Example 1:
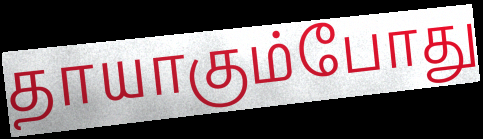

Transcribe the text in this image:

தாயாகும்போது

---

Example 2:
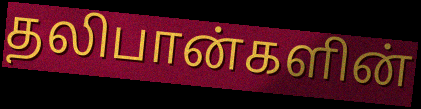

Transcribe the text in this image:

தலிபான்களின்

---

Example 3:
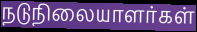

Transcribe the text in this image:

நடுநிலையாளர்கள்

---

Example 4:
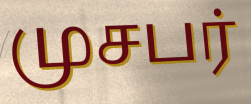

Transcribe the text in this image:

முசபர்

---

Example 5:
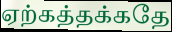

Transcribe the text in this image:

ஏற்கத்தக்கதே